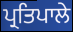
ਪ੍ਰਤਿਪਾਲੇ